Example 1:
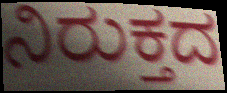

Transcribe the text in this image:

ನಿರುಕ್ತದ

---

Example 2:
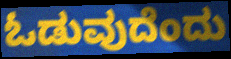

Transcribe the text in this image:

ಓಡುವುದೆಂದು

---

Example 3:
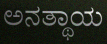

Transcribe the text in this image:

ಅನತ್ಥಾಯ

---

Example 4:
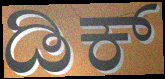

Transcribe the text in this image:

ಡಿಕ್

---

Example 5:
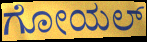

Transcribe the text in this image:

ಗೋಯಲ್